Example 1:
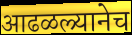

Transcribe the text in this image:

आढळल्यानेच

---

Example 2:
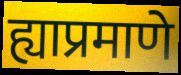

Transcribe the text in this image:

ह्याप्रमाणे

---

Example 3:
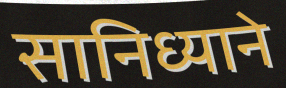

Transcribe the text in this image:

सानिध्याने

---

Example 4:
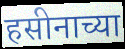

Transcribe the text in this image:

हसीनाच्या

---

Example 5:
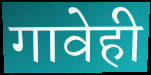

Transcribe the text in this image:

गावेही